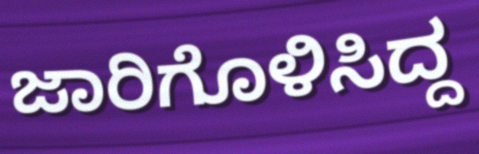
ಜಾರಿಗೊಳಿಸಿದ್ದ